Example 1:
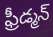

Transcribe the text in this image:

ఫ్రీడ్మన్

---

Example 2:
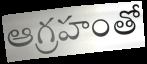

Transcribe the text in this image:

ఆగ్రహంతో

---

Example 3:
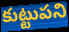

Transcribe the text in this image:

కుట్టుపని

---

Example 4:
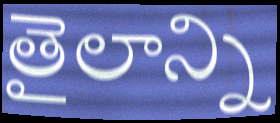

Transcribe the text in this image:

తైలాన్ని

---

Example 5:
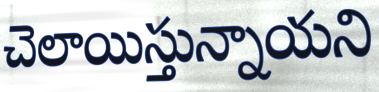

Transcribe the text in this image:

చెలాయిస్తున్నాయని